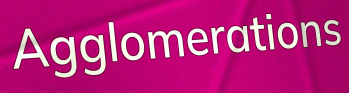
Agglomerations